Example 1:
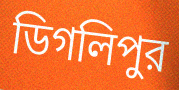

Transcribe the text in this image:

ডিগলিপুর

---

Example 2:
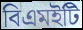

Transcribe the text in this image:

বিএমইটি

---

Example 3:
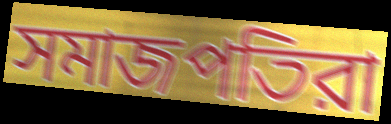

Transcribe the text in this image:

সমাজপতিরা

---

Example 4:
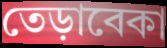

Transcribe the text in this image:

তেড়াবেকা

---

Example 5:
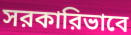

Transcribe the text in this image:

সরকারিভাবে